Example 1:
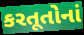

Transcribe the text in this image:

કરતૂતોનાં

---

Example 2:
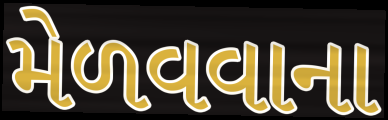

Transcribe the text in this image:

મેળવવાના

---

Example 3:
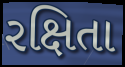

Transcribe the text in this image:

રક્ષિતા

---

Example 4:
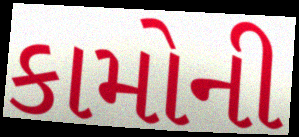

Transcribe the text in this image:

કામોની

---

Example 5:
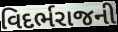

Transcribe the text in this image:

વિદર્ભરાજની